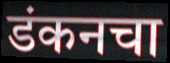
डंकनचा